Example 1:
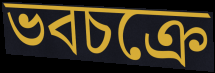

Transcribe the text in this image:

ভবচক্রে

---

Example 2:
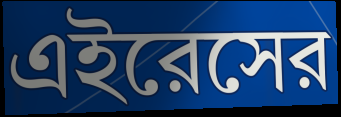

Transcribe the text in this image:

এইরেসের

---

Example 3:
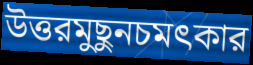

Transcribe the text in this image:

উত্তরমুছুনচমৎকার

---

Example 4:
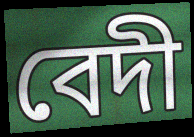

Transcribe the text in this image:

বেদী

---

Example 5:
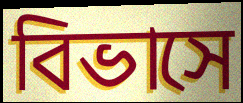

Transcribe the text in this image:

বিভাসে